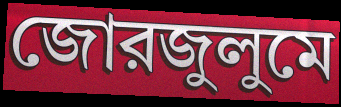
জোরজুলুমে